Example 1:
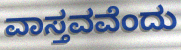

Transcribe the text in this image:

ವಾಸ್ತವವೆಂದು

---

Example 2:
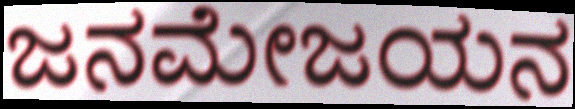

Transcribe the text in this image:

ಜನಮೇಜಯನ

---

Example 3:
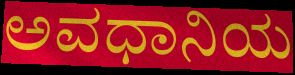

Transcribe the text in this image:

ಅವಧಾನಿಯ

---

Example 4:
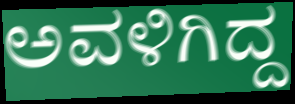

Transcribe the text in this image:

ಅವಳಿಗಿದ್ದ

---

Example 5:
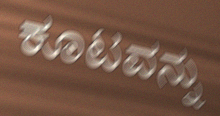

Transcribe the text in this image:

ಕೂಟವನ್ನು